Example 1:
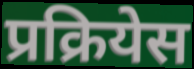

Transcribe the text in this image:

प्रक्रियेस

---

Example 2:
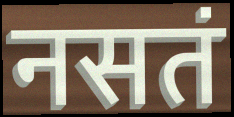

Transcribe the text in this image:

नसतं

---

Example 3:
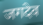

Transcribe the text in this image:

जगदेव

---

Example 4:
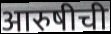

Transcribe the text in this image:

आरुषीची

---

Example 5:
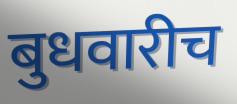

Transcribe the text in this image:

बुधवारीच